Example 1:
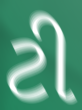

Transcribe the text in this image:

ટી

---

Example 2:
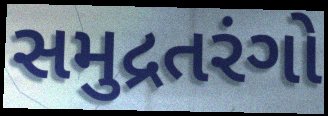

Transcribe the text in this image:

સમુદ્રતરંગો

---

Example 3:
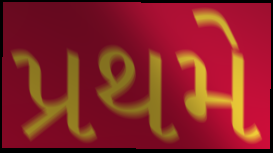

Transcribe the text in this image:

પ્રથમે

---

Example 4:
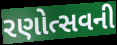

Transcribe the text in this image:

રણોત્સવની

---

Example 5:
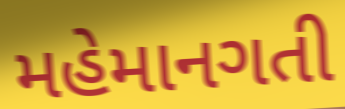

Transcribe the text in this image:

મહેમાનગતી